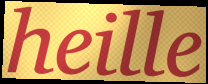
heille